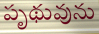
పృథువును